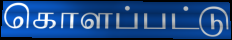
கொளப்பட்டு